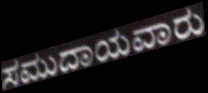
ಸಮುದಾಯವಾರು